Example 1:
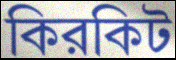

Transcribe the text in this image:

কিরকিট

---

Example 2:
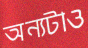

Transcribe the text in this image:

অন্যটাও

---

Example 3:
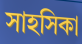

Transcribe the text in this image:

সাহসিকা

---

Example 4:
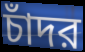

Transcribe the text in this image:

চাঁদর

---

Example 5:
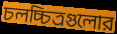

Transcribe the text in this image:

চলচ্চিত্রগুলোর